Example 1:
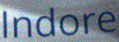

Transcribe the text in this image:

Indore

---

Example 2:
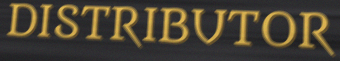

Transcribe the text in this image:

DISTRIBUTOR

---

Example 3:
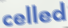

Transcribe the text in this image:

celled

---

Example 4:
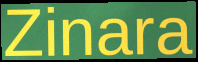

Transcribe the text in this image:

Zinara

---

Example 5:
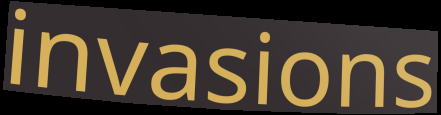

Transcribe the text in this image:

invasions